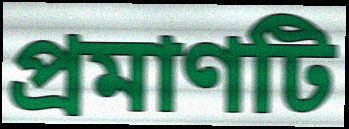
প্ৰমাণটি